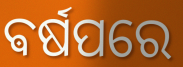
ଵର୍ଷପରେ